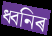
ধ্বনিৰ